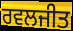
ਰਵਲਜੀਤ